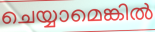
ചെയ്യാമെങ്കിൽ